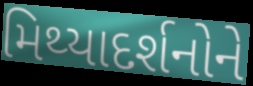
મિથ્યાદર્શનોને